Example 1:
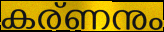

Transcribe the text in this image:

കര്ണനും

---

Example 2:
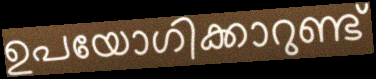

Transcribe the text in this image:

ഉപയോഗിക്കാറുണ്ട്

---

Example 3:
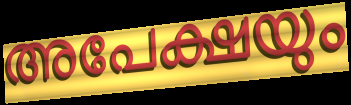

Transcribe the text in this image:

അപേക്ഷയും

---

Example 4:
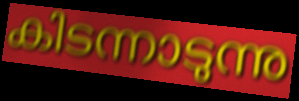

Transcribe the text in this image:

കിടന്നാടുന്നു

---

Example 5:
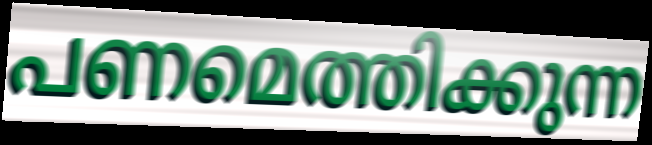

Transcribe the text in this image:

പണമെത്തിക്കുന്ന